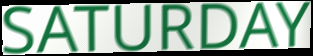
SATURDAY